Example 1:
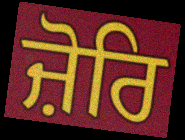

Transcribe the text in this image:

ਜ਼ੋਰਿ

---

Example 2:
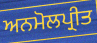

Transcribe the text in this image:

ਅਨਮੋਲਪ੍ਰੀਤ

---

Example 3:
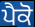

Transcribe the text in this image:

ਪੈਕੋ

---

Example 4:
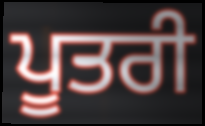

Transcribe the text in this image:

ਪੂਤਰੀ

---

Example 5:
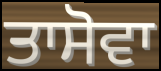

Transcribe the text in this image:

ਤਾਸੋਵਾ